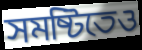
সমষ্টিতেও